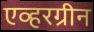
एव्हरग्रीन